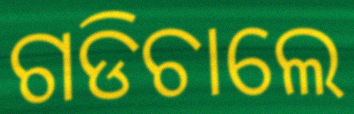
ଗଡିଚାଲେ